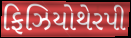
ફિઝિયોથેરપી